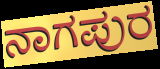
ನಾಗಪುರ